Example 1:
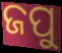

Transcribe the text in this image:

ଜପୁ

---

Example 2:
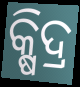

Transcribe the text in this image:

କ୍ଷିଦ୍ର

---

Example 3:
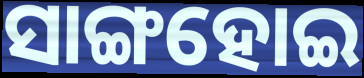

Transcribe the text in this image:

ସାଙ୍ଗହୋଇ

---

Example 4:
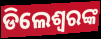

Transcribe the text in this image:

ଡିଲେଶ୍ଵରଙ୍କ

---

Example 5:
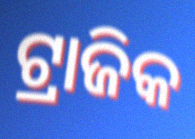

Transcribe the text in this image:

ଟ୍ରାଜିକ